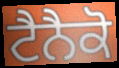
ਟੈਨੈਕੋ